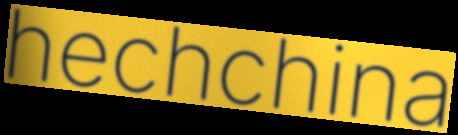
hechchina